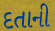
દતાની